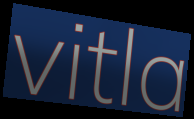
vitla